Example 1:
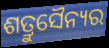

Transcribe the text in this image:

ଶତ୍ରୁସୈନ୍ୟର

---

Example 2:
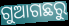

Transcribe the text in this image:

ଗୁଆଗଛରୁ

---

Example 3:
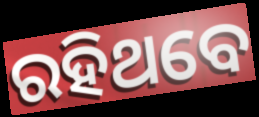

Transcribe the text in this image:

ରହିଥବେ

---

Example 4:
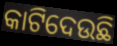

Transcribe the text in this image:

କାଟିଦେଉଛି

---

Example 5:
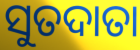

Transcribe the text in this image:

ସୁତଦାତା